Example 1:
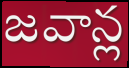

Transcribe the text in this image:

జవాన్ల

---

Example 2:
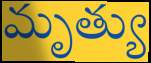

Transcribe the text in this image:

మృత్యు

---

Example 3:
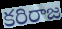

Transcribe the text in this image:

కరిరాజ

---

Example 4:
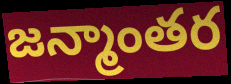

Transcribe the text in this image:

జన్మాంతర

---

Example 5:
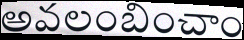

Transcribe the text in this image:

అవలంబించాం